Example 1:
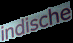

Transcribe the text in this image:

indische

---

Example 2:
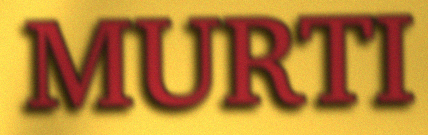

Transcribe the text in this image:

MURTI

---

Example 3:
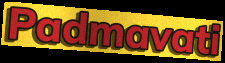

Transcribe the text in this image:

Padmavati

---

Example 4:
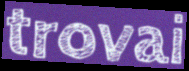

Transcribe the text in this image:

trovai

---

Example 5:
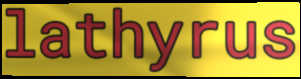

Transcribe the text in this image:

lathyrus